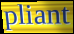
pliant